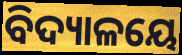
ବିଦ୍ୟାଳୟେ